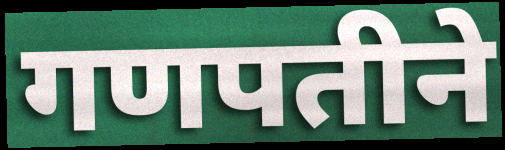
गणपतीने